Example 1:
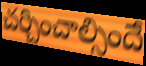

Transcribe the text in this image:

చర్చించాల్సిందే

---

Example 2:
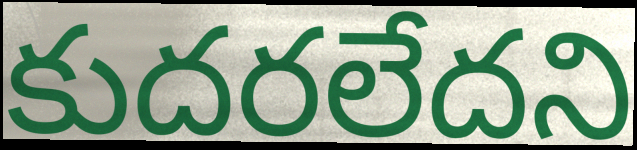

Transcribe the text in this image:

కుదరలేదని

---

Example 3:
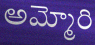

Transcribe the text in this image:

అమ్మోరి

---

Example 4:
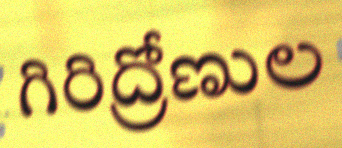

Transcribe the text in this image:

గిరిద్రోణుల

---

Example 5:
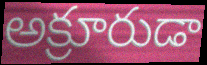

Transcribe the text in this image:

అక్రూరుడా